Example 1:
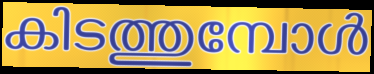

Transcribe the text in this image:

കിടത്തുമ്പോൾ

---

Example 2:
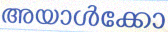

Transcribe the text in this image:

അയാൾക്കോ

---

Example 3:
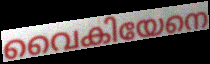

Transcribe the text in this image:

വൈകിയേനെ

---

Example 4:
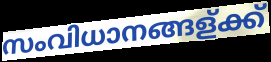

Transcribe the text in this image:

സംവിധാനങ്ങള്ക്ക്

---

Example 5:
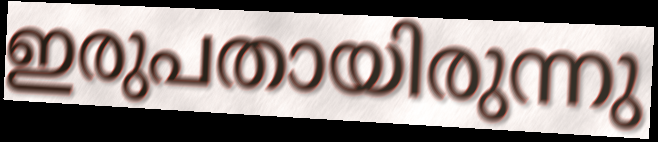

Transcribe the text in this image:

ഇരുപതായിരുന്നു